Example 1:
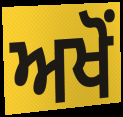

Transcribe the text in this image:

ਅਖੋਂ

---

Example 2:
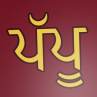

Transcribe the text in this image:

ਪੱਪੂ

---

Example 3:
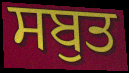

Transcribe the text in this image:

ਸਬੁਤ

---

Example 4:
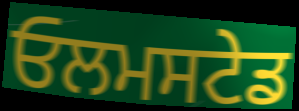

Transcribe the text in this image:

ਓਲਮਸਟੇਡ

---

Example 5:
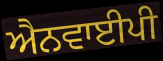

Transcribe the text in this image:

ਐਨਵਾਈਪੀ